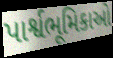
પાર્શ્વભૂમિકાઓ